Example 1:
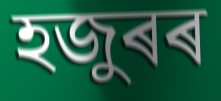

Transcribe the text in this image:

হজুৰৰ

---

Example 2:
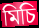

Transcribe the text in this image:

মিচি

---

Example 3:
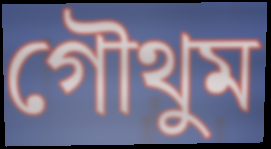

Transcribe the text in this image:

গৌথুম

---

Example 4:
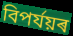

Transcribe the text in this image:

বিপৰ্যয়ৰ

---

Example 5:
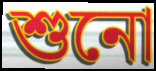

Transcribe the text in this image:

শুনো